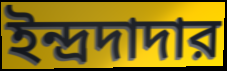
ইন্দ্রদাদার